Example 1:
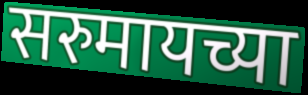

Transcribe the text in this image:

सरुमायच्या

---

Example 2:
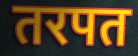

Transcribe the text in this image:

तरपत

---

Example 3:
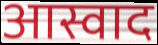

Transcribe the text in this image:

आस्वाद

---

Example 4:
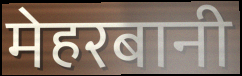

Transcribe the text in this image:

मेहरबानी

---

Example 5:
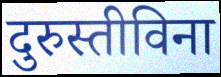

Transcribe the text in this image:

दुरुस्तीविना